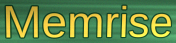
Memrise